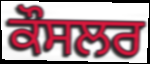
ਕੌਸਲਰ